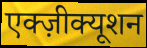
एक्ज़ीक्यूशन